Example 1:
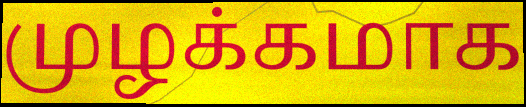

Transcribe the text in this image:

முழக்கமாக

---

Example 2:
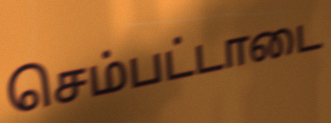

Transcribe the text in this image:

செம்பட்டாடை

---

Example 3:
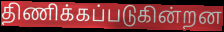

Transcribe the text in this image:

திணிக்கப்படுகின்றன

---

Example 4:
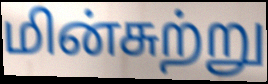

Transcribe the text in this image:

மின்சுற்று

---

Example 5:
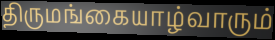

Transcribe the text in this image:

திருமங்கையாழ்வாரும்